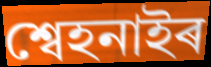
শ্বেহনাইৰ